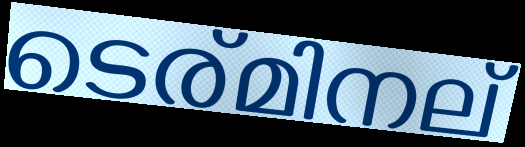
ടെര്മിനല്